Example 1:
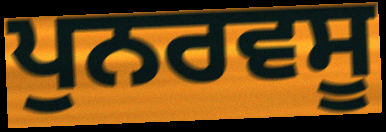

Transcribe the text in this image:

ਪੁਨਰਵਸੂ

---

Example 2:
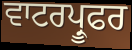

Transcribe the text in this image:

ਵਾਟਰਪ੍ਰੂਫਰ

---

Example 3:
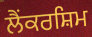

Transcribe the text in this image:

ਲੈਂਕਰਸ਼ਿਮ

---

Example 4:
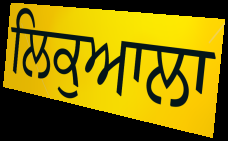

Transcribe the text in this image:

ਲਿਕੁਆਲਾ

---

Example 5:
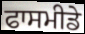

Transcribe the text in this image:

ਫਾਸਮੀਡੇ